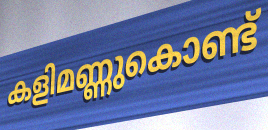
കളിമണ്ണുകൊണ്ട്